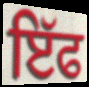
ਇੱਫ